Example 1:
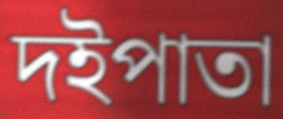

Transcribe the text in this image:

দইপাতা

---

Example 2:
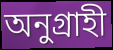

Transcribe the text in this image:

অনুগ্রাহী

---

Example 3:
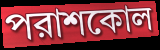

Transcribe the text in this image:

পরাশকোল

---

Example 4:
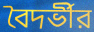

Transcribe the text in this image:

বৈদর্ভীর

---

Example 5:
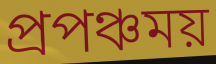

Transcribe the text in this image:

প্রপঞ্চময়